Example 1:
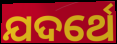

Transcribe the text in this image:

ଯଦର୍ଥେ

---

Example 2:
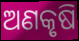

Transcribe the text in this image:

ଅଣକୃଷି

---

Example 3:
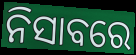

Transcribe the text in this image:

ନିସାବରେ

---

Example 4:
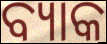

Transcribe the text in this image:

ବ୍ୟାକ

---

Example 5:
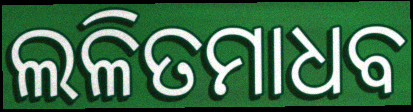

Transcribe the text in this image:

ଲଳିତମାଧବ